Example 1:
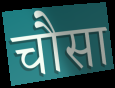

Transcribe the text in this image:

चौसा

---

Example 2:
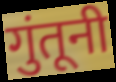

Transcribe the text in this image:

गुंतूनी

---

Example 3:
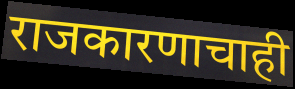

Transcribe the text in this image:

राजकारणाचाही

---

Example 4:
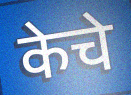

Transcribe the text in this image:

केचे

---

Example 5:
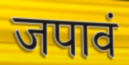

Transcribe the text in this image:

जपावं